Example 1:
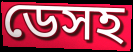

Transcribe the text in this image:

ডেসহ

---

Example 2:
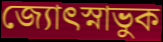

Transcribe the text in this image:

জ্যোৎস্নাভুক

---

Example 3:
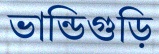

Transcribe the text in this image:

ভান্ডিগুড়ি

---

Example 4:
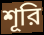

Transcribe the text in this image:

শূরি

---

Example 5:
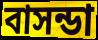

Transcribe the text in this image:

বাসন্ডা